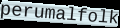
perumalfolk